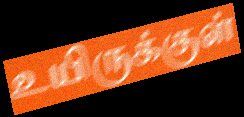
உயிருக்குள்